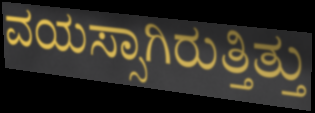
ವಯಸ್ಸಾಗಿರುತ್ತಿತ್ತು